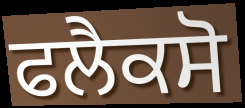
ਫਲੈਕਸੋ